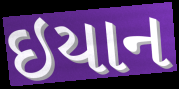
ઇયાન